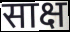
साक्ष